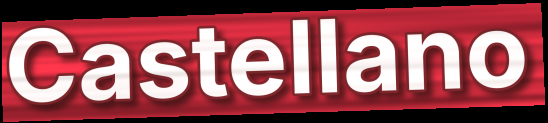
Castellano